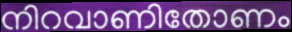
നിറവാണിതോണം